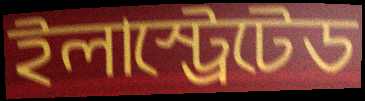
ইলাস্ট্রেটেড